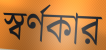
স্বর্ণকার